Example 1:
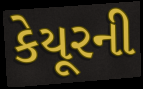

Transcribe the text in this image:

કેયૂરની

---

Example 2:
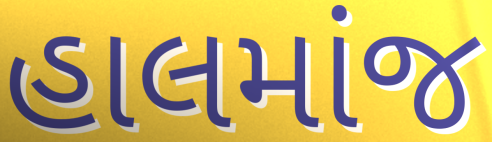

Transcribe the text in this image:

હાલમાંજ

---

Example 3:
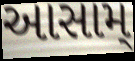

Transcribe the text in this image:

આસામ્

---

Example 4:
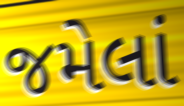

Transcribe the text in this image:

જમેલાં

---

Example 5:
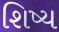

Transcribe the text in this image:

શિષ્ય